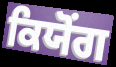
ਕਿਯੋਂਗ